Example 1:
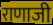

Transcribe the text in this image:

राणाजी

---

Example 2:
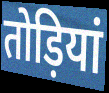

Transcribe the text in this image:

तोड़ियां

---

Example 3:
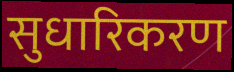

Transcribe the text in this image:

सुधारिकरण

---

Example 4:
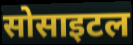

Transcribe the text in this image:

सोसाइटल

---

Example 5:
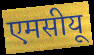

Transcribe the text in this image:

एमसीयू